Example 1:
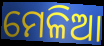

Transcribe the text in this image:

ମେଳିଆ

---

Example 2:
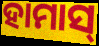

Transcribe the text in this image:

ହାମାସ୍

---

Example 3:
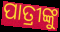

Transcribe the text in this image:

ପାତ୍ରୀଙ୍କୁ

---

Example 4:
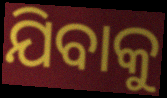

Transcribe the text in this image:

ଯିବାକୁ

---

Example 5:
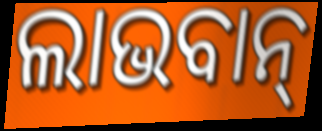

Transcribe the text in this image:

ଲାଭବାନ୍